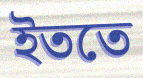
ইততে